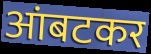
आंबटकर